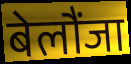
बेलौंजा